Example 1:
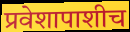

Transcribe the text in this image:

प्रवेशापाशीच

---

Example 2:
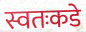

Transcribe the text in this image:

स्वतःकडे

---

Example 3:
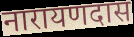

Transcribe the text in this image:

नारायणदास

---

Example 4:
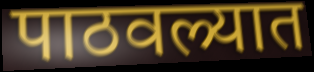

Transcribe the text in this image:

पाठवल्यात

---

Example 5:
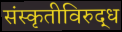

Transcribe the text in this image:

संस्कृतीविरुद्ध